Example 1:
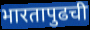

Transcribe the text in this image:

भारतापुढची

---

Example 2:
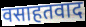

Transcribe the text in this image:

वसाहतवाद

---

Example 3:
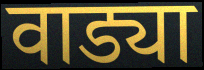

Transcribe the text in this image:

वाड्या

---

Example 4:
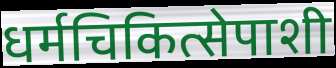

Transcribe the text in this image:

धर्मचिकित्सेपाशी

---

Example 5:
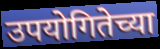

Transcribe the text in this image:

उपयोगितेच्या